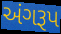
અંગરૂપ